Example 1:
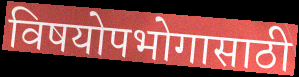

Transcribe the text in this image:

विषयोपभोगासाठी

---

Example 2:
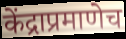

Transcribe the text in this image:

केंद्राप्रमाणेच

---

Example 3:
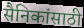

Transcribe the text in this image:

सैनिकांसाठी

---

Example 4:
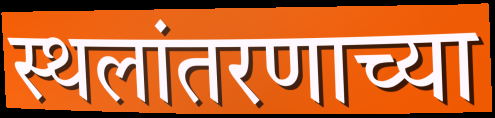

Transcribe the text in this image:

स्थलांतरणाच्या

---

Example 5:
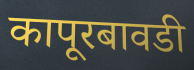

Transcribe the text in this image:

कापूरबावडी